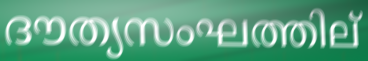
ദൗത്യസംഘത്തില്